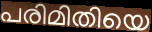
പരിമിതിയെ